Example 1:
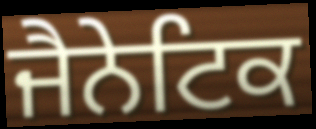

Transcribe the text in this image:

ਜੈਨੇਟਿਕ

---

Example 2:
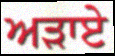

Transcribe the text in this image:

ਅੜਾਏ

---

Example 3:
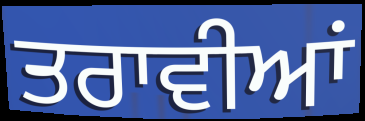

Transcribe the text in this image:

ਤਰਾਵੀਆਂ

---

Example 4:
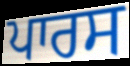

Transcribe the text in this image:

ਪਾਰਸ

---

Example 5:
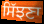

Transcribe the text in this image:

ਸਿੱਝਣਾ